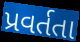
પ્રવર્તતા